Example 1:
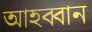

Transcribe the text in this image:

আহব্বান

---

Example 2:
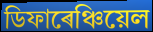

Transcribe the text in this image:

ডিফাৰেঞ্চিয়েল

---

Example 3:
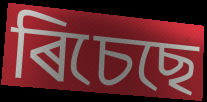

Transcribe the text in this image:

ৰিচেছে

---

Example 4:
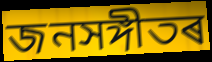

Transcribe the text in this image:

জনসঙ্গীতৰ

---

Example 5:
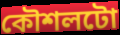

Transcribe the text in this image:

কৌশলটো